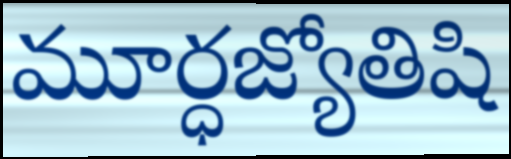
మూర్ధజ్యోతిషి